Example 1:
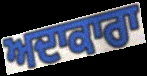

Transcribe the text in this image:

ਅਦਾਕਾਰਾ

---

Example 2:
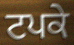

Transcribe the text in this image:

ਟਪਕੇ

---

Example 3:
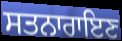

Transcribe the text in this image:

ਸਤਨਾਰਾਇਣ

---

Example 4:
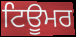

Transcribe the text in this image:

ਟਿਊਮਰ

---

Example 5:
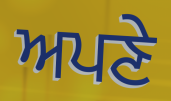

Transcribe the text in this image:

ਅਪਣੇ